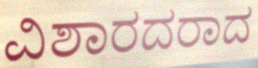
ವಿಶಾರದರಾದ